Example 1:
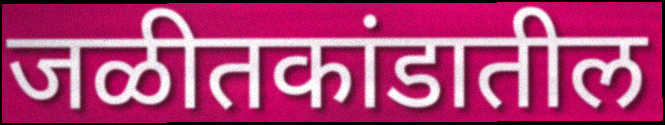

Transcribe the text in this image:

जळीतकांडातील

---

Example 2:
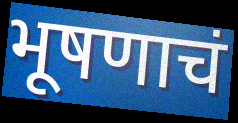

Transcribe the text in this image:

भूषणाचं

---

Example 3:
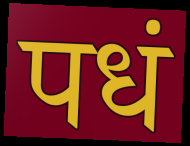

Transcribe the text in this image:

पधं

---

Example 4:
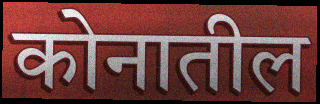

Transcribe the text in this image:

कोनातील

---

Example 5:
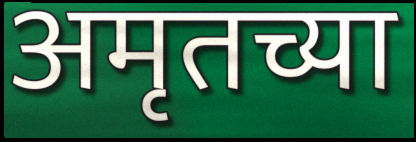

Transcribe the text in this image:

अमृतच्या